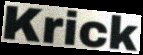
Krick